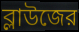
ব্লাউজের